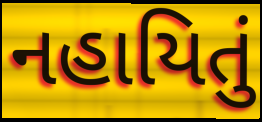
નહાયિતું